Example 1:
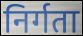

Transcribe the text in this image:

निर्गता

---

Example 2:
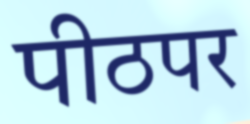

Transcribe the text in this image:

पीठपर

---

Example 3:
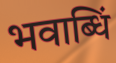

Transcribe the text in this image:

भवाब्धिं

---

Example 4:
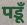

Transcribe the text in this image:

पडूँ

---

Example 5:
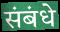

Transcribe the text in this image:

संबंधे